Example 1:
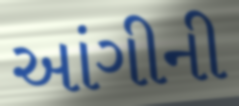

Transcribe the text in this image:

આંગીની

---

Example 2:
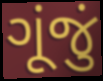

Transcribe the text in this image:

ગૂંજું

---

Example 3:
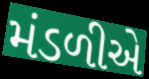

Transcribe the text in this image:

મંડળીએ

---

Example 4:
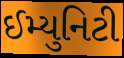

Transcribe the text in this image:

ઈમ્યુનિટી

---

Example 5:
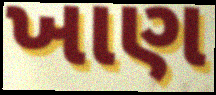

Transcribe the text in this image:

ખાણ